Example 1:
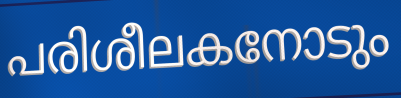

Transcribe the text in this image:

പരിശീലകനോടും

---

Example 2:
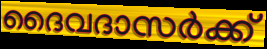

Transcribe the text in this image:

ദൈവദാസർക്ക്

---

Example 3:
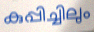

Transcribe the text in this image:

കുപ്പിച്ചിലും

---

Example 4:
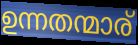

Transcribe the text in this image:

ഉന്നതന്മാര്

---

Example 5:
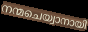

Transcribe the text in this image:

നന്മചെയ്വാനായി